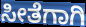
ಸೀತೆಗಾಗಿ